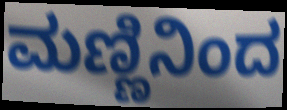
ಮಣ್ಣಿನಿಂದ